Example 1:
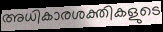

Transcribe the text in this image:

അധികാരശക്തികളുടെ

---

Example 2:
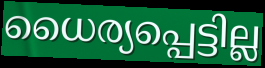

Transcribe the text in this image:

ധൈര്യപ്പെട്ടില്ല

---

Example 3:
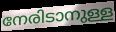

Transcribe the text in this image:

നേരിടാനുള്ള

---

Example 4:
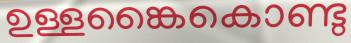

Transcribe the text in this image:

ഉള്ളങ്കൈകൊണ്ടു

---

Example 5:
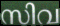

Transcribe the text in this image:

സിവ